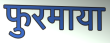
फुरमाया